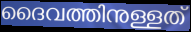
ദൈവത്തിനുള്ളത്